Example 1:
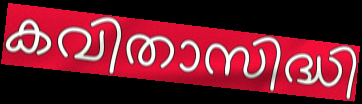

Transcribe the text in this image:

കവിതാസിദ്ധി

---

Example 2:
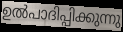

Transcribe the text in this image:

ഉൽപാദിപ്പിക്കുന്നു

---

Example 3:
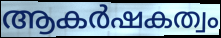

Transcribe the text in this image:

ആകർഷകത്വം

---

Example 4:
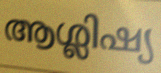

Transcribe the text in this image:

ആശ്ലിഷ്യ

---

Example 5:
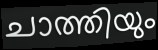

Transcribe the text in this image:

ചാത്തിയും